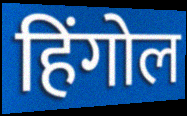
हिंगोल